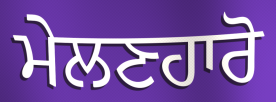
ਮੇਲਣਹਾਰੋ